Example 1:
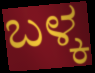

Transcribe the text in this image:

ಬಳ್ಕ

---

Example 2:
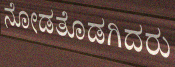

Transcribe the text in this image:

ನೋಡತೊಡಗಿದರು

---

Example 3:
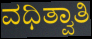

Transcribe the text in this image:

ವಧಿತ್ವಾತಿ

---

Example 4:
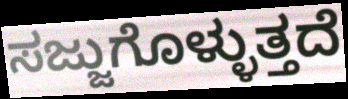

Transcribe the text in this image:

ಸಜ್ಜುಗೊಳ್ಳುತ್ತದೆ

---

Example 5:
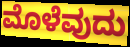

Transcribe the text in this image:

ಮೊಳೆವುದು